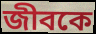
জীবকে